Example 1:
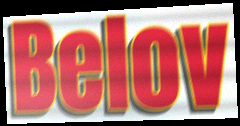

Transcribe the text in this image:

Belov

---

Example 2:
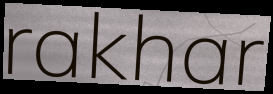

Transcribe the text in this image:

rakhar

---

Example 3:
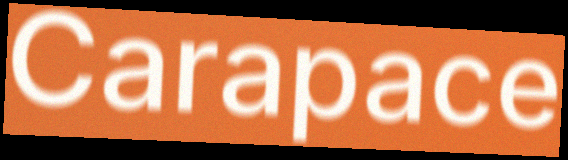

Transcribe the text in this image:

Carapace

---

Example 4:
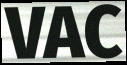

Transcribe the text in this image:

VAC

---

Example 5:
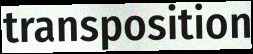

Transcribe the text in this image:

transposition